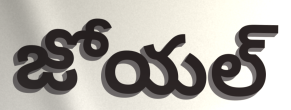
జోయల్